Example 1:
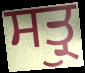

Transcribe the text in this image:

ਸਤ੍ਰੁ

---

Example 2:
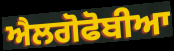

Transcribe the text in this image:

ਐਲਗੋਫੋਬੀਆ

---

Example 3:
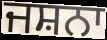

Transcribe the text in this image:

ਜਸ਼ਨਾ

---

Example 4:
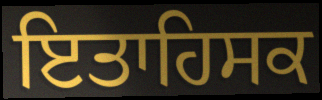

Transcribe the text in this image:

ਇਤਾਹਿਸਕ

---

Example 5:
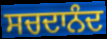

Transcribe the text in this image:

ਸਚਦਾਨੰਦ